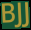
BJJ